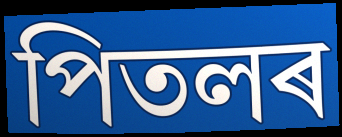
পিতলৰ